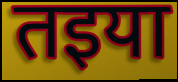
तइया